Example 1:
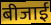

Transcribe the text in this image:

बीजाई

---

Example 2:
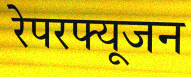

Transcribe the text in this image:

रेपरफ्यूजन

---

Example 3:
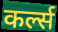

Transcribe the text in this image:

कर्ल्स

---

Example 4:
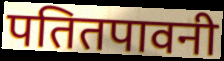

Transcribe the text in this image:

पतितपावनी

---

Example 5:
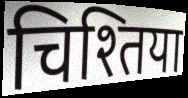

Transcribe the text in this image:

चिश्तिया